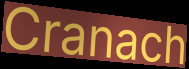
Cranach